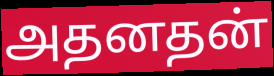
அதனதன்